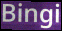
Bingi